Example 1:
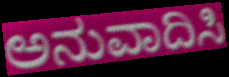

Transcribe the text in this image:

ಅನುವಾದಿಸಿ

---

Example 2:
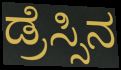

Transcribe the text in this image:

ಡ್ರೆಸ್ಸಿನ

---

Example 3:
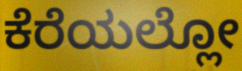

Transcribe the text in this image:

ಕೆರೆಯಲ್ಲೋ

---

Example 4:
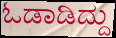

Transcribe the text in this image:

ಓಡಾಡಿದ್ದು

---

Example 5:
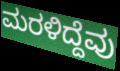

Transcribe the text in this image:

ಮರಳಿದ್ದೆವು